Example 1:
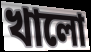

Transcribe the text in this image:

খালো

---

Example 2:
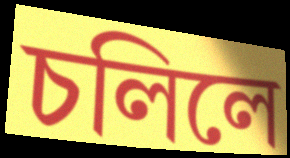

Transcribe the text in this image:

চলিলে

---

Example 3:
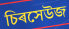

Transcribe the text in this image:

চিৰসেউজ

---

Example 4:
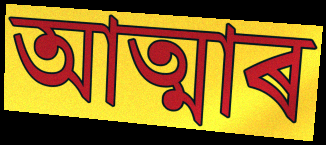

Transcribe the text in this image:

আত্মাৰ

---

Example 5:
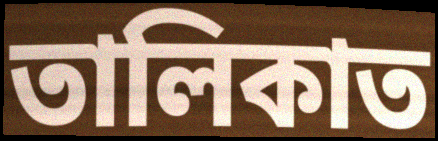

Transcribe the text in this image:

তালিকাত